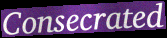
Consecrated